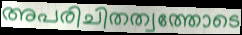
അപരിചിതത്വത്തോടെ